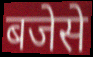
बजेसे